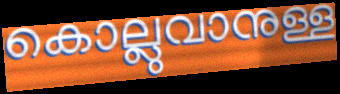
കൊല്ലുവാനുള്ള